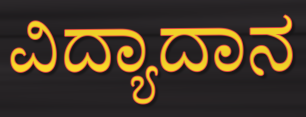
ವಿದ್ಯಾದಾನ